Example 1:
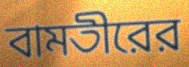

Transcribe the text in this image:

বামতীরের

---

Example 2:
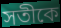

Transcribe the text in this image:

সতীকে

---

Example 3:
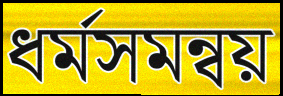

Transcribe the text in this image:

ধর্মসমন্বয়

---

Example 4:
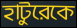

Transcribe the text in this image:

হাটুরেকে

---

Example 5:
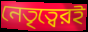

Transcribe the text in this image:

নেতৃত্বেরই